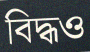
বিদ্ধও